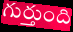
గుర్తుంది